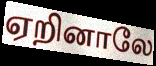
ஏறினாலே